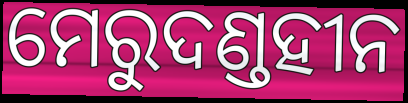
ମେରୁଦଣ୍ଡହୀନ